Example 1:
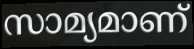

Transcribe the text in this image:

സാമ്യമാണ്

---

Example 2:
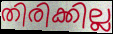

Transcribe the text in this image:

തിരിക്കില്ല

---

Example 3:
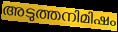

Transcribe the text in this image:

അടുത്തനിമിഷം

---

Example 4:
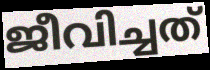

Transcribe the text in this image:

ജീവിച്ചത്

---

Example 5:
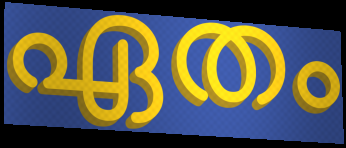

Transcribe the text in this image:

ഏതം